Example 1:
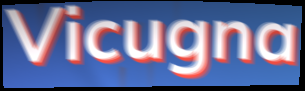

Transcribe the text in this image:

Vicugna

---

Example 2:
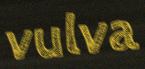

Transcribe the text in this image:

vulva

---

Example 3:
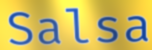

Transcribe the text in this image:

Salsa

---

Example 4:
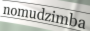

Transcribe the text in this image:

nomudzimba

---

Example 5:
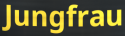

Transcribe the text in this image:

Jungfrau